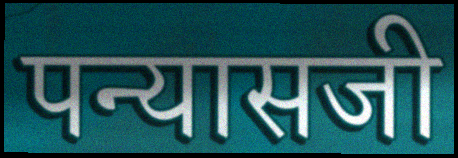
पन्यासजी